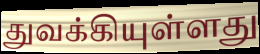
துவக்கியுள்ளது